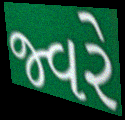
જ્વરે